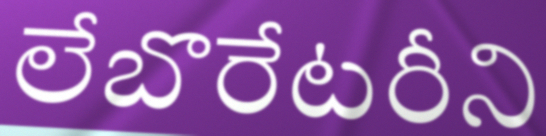
లేబొరేటరీని